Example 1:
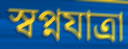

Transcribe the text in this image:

স্বপ্নযাত্রা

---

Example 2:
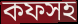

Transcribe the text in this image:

কফসহ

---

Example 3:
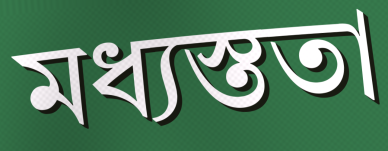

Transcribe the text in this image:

মধ্যস্ততা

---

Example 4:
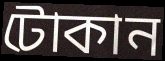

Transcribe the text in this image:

টোকান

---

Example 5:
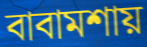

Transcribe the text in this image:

বাবামশায়